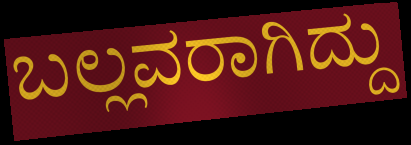
ಬಲ್ಲವರಾಗಿದ್ದು